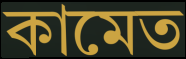
কামেত